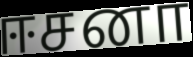
ஈசனா